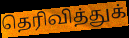
தெரிவித்துக்